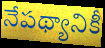
నేపథ్యానికీ